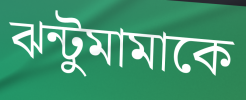
ঝন্টুমামাকে